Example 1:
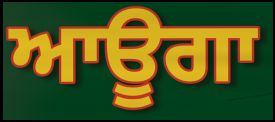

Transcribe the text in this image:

ਆਊਗਾ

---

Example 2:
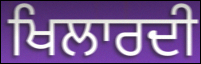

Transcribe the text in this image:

ਖਿਲਾਰਦੀ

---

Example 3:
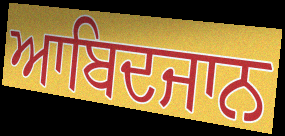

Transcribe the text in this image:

ਆਬਿਦਜਾਨ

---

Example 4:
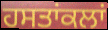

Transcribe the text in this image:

ਹਸਤਾਂਕਲਾਂ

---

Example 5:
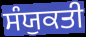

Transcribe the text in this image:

ਸੰਯੁਕਤੀ